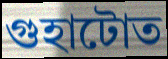
গুহাটোত